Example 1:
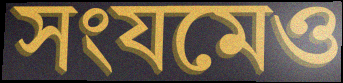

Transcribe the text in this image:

সংযমেও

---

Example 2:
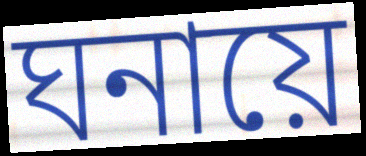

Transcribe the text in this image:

ঘনায়ে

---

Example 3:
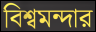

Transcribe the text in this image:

বিশ্বমন্দার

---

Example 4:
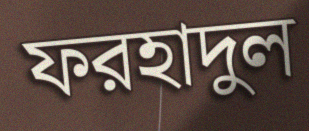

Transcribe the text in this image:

ফরহাদুল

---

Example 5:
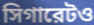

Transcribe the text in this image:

সিগারেটও